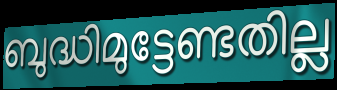
ബുദ്ധിമുട്ടേണ്ടതില്ല